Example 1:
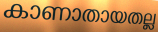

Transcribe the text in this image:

കാണാതായതല്ല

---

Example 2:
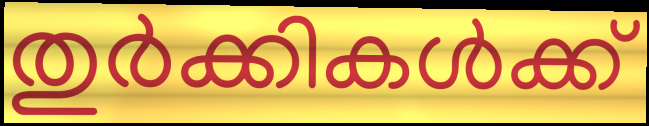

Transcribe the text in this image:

തുർക്കികൾക്ക്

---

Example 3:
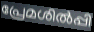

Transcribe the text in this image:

പ്രേമശിൽപ്പി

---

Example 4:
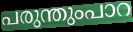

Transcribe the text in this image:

പരുന്തുംപാറ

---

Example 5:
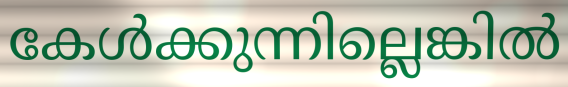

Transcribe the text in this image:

കേൾക്കുന്നില്ലെങ്കിൽ